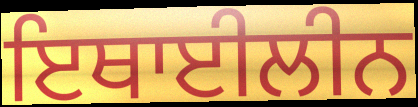
ਇਥਾਈਲੀਨ